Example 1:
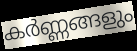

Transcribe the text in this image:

കർണ്ണങ്ങളും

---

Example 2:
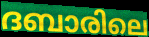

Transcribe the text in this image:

ദബാരിലെ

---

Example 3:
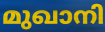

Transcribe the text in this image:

മുഖാനി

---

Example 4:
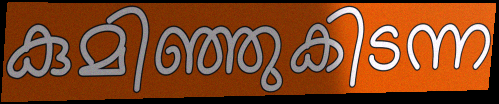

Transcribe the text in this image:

കുമിഞ്ഞുകിടന്ന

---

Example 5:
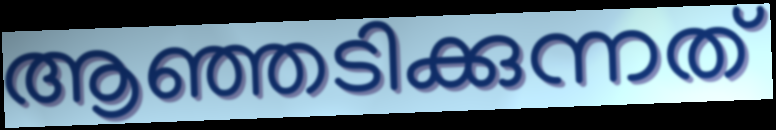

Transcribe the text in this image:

ആഞ്ഞടിക്കുന്നത്